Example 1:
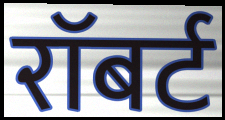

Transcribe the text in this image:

रॉबर्ट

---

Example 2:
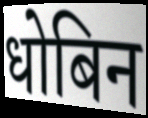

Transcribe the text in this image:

धोबिन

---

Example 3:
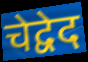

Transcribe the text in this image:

चेद्वेद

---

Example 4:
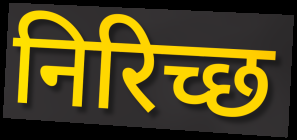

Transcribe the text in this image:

निरिच्छ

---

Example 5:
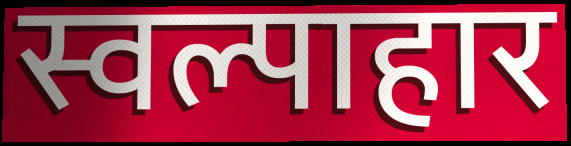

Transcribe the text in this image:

स्वल्पाहार